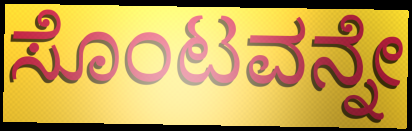
ಸೊಂಟವನ್ನೇ